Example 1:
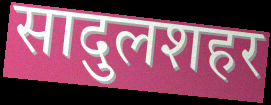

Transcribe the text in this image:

सादुलशहर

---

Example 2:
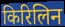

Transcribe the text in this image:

किरिलिन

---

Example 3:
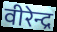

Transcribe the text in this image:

वीरेन्‍द्र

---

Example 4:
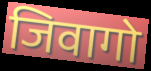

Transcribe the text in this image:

जिवागो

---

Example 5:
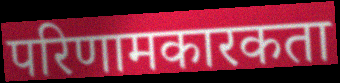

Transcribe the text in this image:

परिणामकारकता